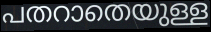
പതറാതെയുള്ള